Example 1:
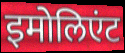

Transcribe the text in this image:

इमोलिएंट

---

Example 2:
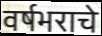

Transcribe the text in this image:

वर्षभराचे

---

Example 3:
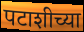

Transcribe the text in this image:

पटाशीच्या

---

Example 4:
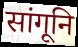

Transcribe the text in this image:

सांगूनि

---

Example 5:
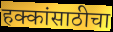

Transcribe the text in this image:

हक्कांसाठीचा